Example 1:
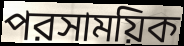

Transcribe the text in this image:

পরসাময়িক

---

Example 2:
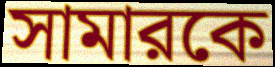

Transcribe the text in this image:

সামারকে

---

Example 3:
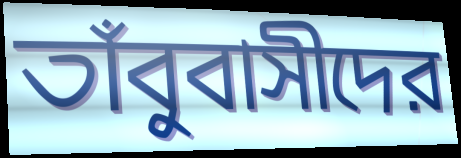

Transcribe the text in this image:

তাঁবুবাসীদের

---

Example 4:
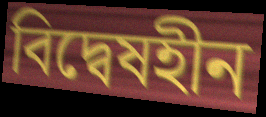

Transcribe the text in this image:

বিদ্বেষহীন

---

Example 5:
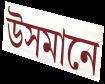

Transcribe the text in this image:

উসমানে